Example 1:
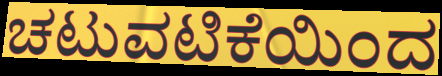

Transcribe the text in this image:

ಚಟುವಟಿಕೆಯಿಂದ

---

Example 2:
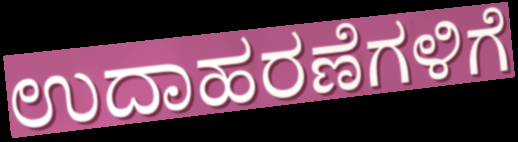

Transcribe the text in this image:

ಉದಾಹರಣೆಗಳಿಗೆ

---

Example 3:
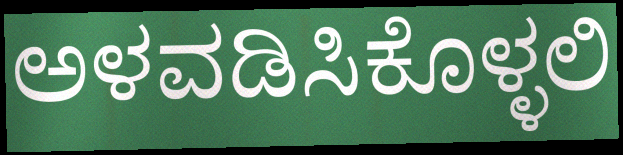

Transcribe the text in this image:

ಅಳವಡಿಸಿಕೊಳ್ಳಲಿ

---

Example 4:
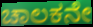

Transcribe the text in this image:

ಚಾಲಕನೇ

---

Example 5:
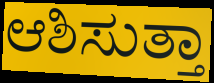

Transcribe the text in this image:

ಆಶಿಸುತ್ತಾ